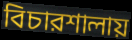
বিচারশালায়